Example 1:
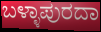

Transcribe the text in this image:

ಬಳ್ಳಾಪುರದಾ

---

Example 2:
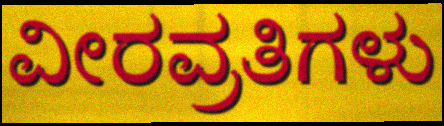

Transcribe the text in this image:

ವೀರವ್ರತಿಗಳು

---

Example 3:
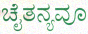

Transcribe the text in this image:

ಚೈತನ್ಯವೂ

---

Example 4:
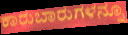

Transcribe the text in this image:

ಕಾರುಬಾರುಗಳನ್ನೂ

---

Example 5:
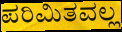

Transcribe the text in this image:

ಪರಿಮಿತವಲ್ಲ